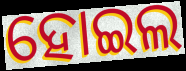
ହୋଇଲ